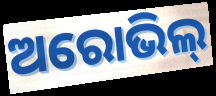
ଅରୋଭିଲ୍